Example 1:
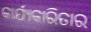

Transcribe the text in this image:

କାର୍ଯ୍ୟକାରିତାର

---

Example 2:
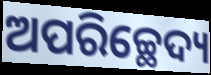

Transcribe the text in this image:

ଅପରିଚ୍ଛେଦ୍ୟ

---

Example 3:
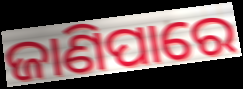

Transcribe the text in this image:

ଜାଣିପାରେ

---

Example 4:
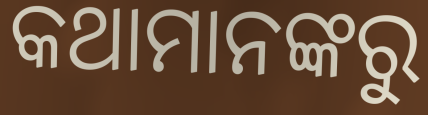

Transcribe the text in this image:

କଥାମାନଙ୍କରୁ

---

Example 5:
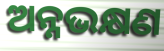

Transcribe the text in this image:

ଅନ୍ନଭକ୍ଷଣ